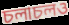
চলাচলও